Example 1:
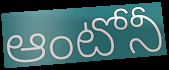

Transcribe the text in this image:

ఆంటోనీ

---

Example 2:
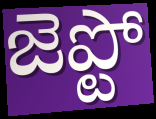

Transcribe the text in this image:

జెప్టో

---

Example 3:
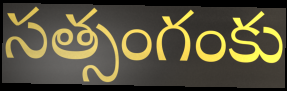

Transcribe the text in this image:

సత్సంగంకు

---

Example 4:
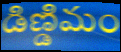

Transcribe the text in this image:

డిణ్డిమం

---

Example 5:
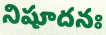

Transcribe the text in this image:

నిషూదనః